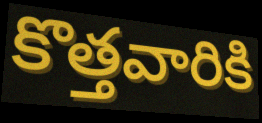
కొత్తవారికి